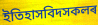
ইতিহাসবিদসকলৰ